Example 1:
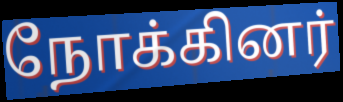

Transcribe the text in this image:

நோக்கினர்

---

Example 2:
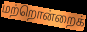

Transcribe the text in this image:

மற்றொன்றைக்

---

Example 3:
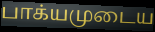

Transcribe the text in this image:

பாக்யமுடைய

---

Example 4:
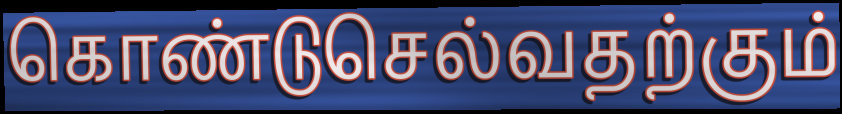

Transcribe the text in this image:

கொண்டுசெல்வதற்கும்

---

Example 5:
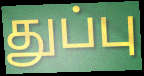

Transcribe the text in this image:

துப்பு